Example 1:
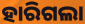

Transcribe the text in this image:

ହାରିଗଲା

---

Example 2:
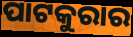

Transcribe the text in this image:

ପାଟକୁରାର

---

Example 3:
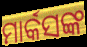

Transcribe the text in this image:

ମାର୍କସଙ୍କ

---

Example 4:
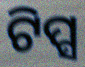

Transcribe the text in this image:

ଟିପ୍ସ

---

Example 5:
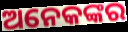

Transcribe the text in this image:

ଅନେକଙ୍କର